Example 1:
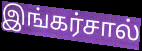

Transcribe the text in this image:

இங்கர்சால்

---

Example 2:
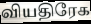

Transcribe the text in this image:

வியதிரேக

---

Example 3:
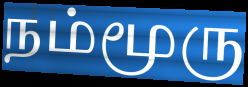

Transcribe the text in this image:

நம்மூரு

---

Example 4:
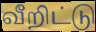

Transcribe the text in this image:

வீறிட்டு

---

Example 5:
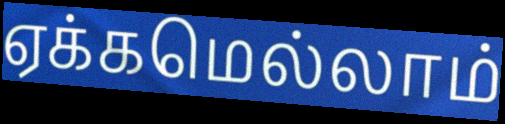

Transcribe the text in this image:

ஏக்கமெல்லாம்